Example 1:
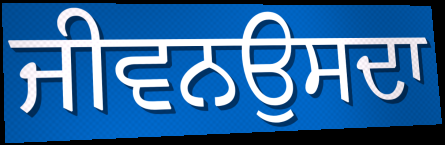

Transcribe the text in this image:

ਜੀਵਨਉਸਦਾ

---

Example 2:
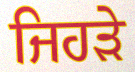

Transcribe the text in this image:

ਜਿਹਡ਼ੇ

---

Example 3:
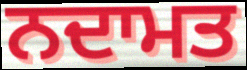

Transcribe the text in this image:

ਨਦਾਮਤ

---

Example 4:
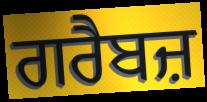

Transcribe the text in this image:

ਗਰੈਬਜ਼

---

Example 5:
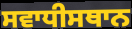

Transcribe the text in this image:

ਸਵਾਧੀਸਥਾਨ